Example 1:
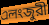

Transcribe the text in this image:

এলংজুরী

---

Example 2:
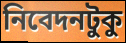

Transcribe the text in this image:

নিবেদনটুকু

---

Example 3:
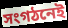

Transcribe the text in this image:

সংগঠনেই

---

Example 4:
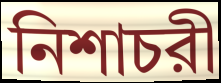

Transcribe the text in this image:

নিশাচরী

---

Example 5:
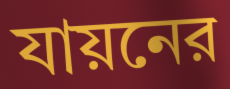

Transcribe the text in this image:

যায়নের